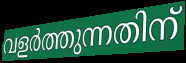
വളർത്തുന്നതിന്